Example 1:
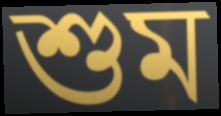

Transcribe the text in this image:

শুম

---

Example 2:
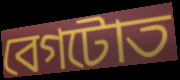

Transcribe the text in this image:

বেগটোত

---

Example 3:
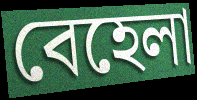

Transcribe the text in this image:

বেহেলা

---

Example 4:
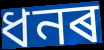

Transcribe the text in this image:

ধনৰ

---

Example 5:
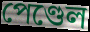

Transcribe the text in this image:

পেণ্ডেল